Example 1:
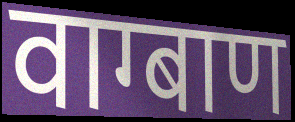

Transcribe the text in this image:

वाग्बाण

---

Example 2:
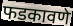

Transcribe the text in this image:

फडकावणे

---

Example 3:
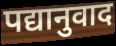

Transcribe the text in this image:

पद्यानुवाद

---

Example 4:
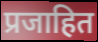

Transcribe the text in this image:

प्रजाहित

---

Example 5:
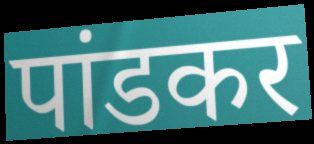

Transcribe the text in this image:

पांडकर